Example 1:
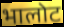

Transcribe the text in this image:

भालोट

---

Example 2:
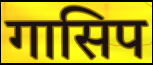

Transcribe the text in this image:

गासिप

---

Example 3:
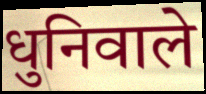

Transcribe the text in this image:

धुनिवाले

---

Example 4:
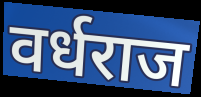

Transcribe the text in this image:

वर्धराज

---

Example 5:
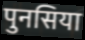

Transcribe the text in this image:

पुनसिया